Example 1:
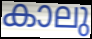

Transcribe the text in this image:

കാലു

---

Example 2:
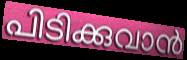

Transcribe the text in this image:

പിടിക്കുവാൻ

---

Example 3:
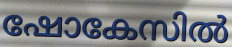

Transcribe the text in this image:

ഷോകേസിൽ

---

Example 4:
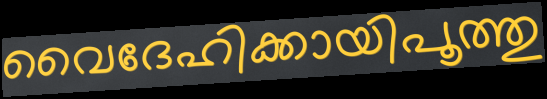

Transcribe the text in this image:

വൈദേഹിക്കായിപൂത്തു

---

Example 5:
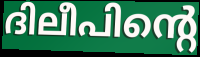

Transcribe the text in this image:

ദിലീപിന്റെ